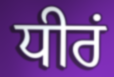
ਧੀਰਂ